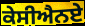
ਕੇਸੀਐਨਏ